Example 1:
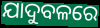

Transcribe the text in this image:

ଯାଦୁବଳରେ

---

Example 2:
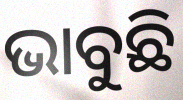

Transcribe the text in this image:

ଭାବୁଛି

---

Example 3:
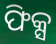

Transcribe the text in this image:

ଫିକ୍ସ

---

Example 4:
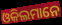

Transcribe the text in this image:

ଓକିଲମାନେ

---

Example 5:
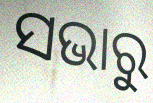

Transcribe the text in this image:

ସଭାରୁ